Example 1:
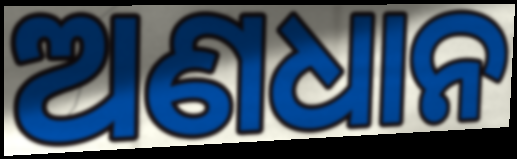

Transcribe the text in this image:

ଅଣଧାନ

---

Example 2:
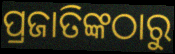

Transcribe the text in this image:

ପ୍ରଜାତିଙ୍କଠାରୁ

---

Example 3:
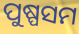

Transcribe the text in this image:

ପୁଷ୍ପସମ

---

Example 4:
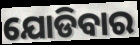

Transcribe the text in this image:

ଯୋଡିବାର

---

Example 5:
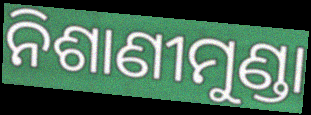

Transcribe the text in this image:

ନିଶାଣୀମୁଣ୍ଡା